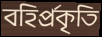
বহির্প্রকৃতি